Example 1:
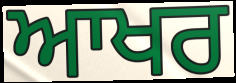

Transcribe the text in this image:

ਆਖਰ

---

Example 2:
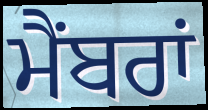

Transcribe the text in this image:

ਮੈਂਬਰਾਂ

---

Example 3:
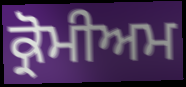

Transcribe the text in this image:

ਕ੍ਰੋਮੀਅਮ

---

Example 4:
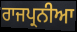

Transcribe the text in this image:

ਰਾਜਪ੍ਰਨੀਆ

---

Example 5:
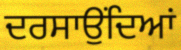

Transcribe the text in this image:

ਦਰਸਾਉਂਦਿਆਂ